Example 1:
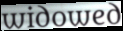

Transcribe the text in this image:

widowed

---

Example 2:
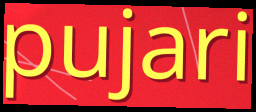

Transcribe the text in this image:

pujari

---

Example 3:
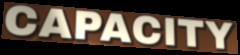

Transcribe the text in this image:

CAPACITY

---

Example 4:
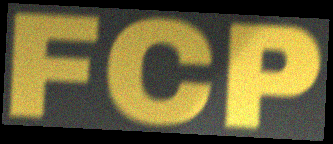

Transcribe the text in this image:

FCP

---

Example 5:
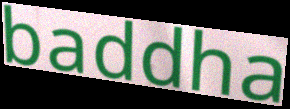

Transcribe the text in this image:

baddha